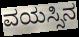
ವಯಸ್ಸಿನ